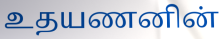
உதயணனின்